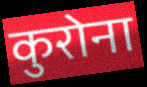
कुरोना